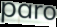
paro